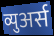
व्युअर्स